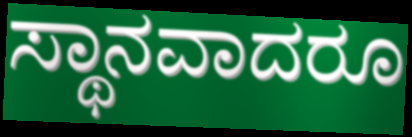
ಸ್ಥಾನವಾದರೂ